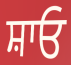
ਸ਼ਾਓ